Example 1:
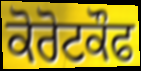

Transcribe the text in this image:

ਕੋਰੋਟਕੌਫ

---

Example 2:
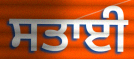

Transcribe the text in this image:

ਸਤਾਈ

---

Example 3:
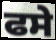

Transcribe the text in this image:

ਫਸੇ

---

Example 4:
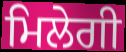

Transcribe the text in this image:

ਮਿਲੇਗੀ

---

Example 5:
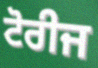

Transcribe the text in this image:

ਟੋਰੀਜ